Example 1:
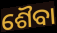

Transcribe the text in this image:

ଶୈବା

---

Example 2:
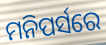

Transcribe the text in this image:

ମନିପର୍ସରେ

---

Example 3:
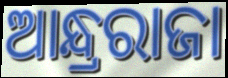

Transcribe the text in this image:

ଆନ୍ଧ୍ରରାଜା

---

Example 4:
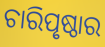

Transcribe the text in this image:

ଚାରିପୃଷ୍ଠାର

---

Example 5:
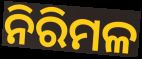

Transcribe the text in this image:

ନିରିମଳ